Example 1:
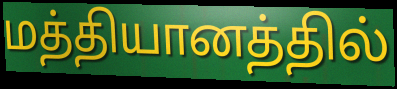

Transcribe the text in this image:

மத்தியானத்தில்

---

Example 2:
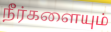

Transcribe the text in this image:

நீர்களையும்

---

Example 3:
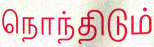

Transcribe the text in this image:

நொந்திடும்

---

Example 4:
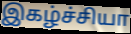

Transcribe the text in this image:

இகழ்ச்சியா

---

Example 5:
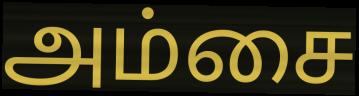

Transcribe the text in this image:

அம்சை